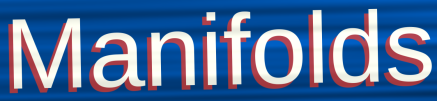
Manifolds